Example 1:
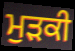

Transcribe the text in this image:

ਮੁੜਕੀ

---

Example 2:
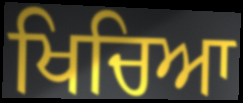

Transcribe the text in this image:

ਖਿਚਿਆ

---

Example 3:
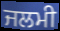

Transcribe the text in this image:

ਜਲਮੀ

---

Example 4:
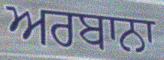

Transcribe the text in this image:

ਅਰਬਾਨਾ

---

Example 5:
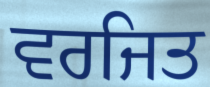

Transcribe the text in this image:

ਵਰਜਿਤ